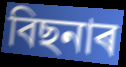
বিছনাৰ